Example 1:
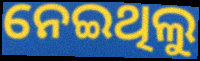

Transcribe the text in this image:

ନେଇଥିଲୁ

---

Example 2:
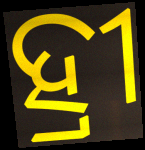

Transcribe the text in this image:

ହ୍ରୀ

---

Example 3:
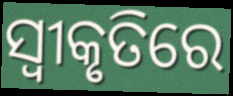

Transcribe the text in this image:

ସ୍ବୀକୃତିରେ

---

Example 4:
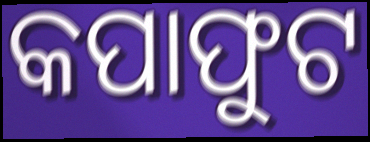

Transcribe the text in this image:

କପାଫୁଟ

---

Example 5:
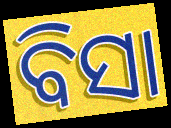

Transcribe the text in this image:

ବିସା